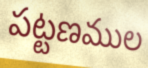
పట్టణముల